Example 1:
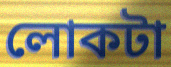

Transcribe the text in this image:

লোকটা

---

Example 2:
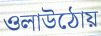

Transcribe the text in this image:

ওলাউঠোয়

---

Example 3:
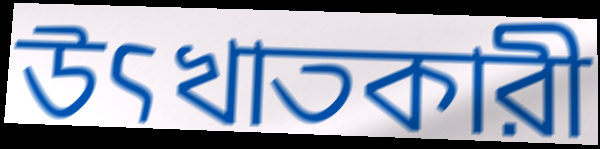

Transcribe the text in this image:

উৎখাতকারী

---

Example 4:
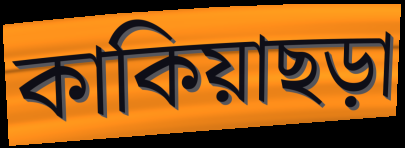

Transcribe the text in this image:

কাকিয়াছড়া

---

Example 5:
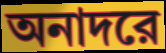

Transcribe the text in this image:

অনাদরে